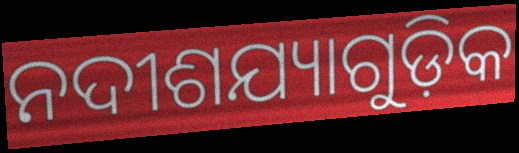
ନଦୀଶଯ୍ୟାଗୁଡ଼ିକ